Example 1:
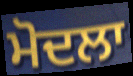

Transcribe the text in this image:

ਮੋਦਲਾ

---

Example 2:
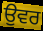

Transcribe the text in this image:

ਉਵਰ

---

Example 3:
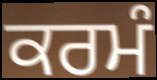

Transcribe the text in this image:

ਕਰਮੰ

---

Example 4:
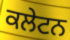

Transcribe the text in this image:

ਕਲੇਟਨ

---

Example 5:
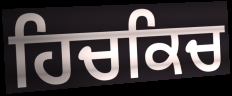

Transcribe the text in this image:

ਹਿਚਕਿਚ